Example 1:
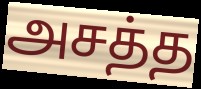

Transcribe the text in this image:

அசத்த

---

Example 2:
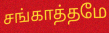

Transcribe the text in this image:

சங்காத்தமே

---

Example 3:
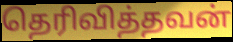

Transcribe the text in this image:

தெரிவித்தவன்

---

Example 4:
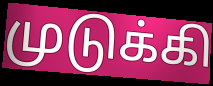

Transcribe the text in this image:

முடுக்கி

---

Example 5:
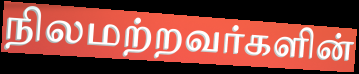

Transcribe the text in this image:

நிலமற்றவர்களின்